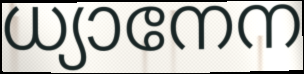
ധ്യാനേന